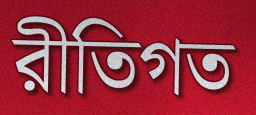
রীতিগত